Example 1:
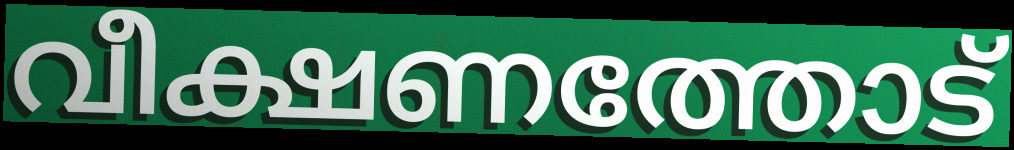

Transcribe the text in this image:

വീക്ഷണത്തോട്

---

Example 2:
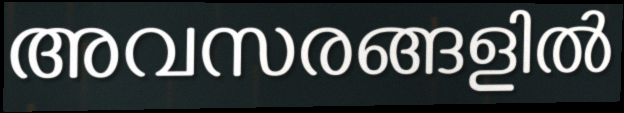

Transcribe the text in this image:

അവസരങ്ങളിൽ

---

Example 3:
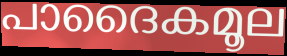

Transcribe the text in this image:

പാദൈകമൂല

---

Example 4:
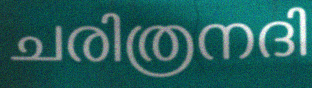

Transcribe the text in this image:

ചരിത്രനദി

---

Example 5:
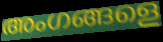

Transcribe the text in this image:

അംഗങ്ങളെ